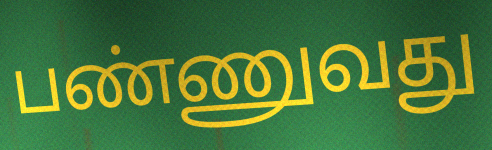
பண்ணுவது